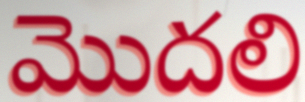
మొదలి